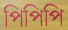
পিপিপি